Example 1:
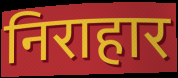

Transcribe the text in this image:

निराहार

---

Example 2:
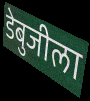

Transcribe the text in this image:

डेबुजीला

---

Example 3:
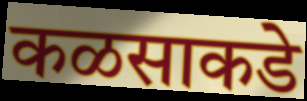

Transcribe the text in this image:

कळसाकडे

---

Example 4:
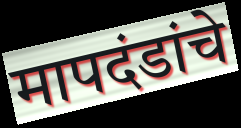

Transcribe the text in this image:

मापदंडांचे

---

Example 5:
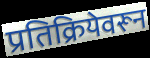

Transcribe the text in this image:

प्रतिक्रियेवरून